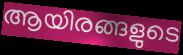
ആയിരങ്ങളുടെ